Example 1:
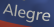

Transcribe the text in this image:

Alegre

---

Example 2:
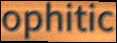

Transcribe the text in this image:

ophitic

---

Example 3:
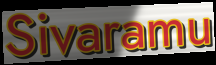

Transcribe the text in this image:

Sivaramu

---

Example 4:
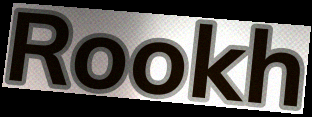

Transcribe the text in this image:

Rookh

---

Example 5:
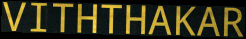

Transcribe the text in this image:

VITHTHAKAR